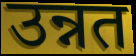
उन्नत